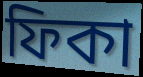
ফিকা